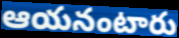
ఆయనంటారు